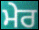
ਮੇਰ